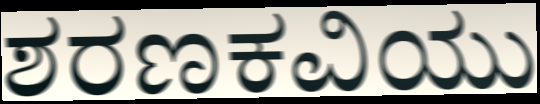
ಶರಣಕವಿಯು